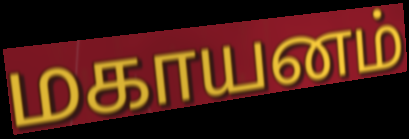
மகாயனம்